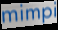
mimpi